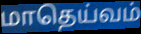
மாதெய்வம்